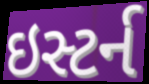
ઇસ્ટર્ન